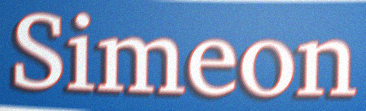
Simeon